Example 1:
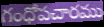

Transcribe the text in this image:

గంధోపచారము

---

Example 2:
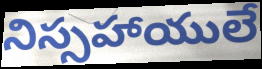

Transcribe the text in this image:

నిస్సహాయులే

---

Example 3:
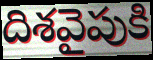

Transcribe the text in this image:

దిశవైపుకి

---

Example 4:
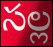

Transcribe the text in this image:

సల్ల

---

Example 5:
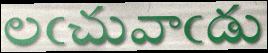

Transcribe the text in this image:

లఁచువాఁడు